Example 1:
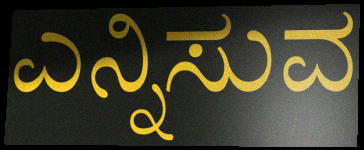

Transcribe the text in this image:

ಎನ್ನಿಸುವ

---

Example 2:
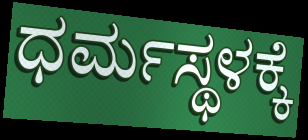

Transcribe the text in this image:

ಧರ್ಮಸ್ಥಳಕ್ಕೆ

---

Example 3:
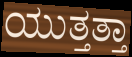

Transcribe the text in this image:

ಯುತ್ತತ್ತಾ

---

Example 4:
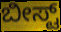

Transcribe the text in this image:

ಬೀಸ್ಟ್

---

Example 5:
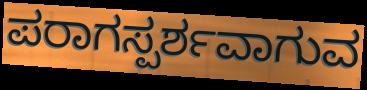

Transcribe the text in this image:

ಪರಾಗಸ್ಪರ್ಶವಾಗುವ